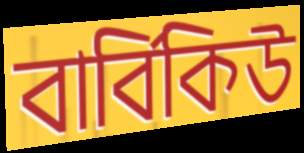
বাৰ্বিকিউ